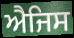
ਐਜਿਸ